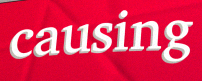
causing